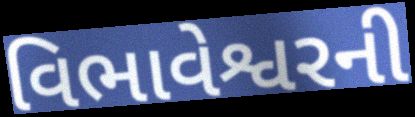
વિભાવેશ્વરની